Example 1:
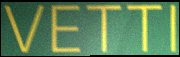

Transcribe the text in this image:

VETTI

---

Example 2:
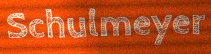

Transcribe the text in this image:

Schulmeyer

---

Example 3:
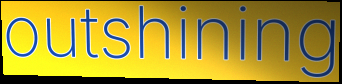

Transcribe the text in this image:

outshining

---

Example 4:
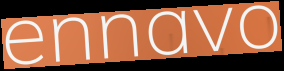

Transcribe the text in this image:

ennavo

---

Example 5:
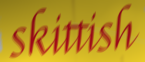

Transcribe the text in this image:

skittish